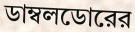
ডাম্বলডোরের